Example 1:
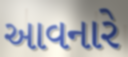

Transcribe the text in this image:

આવનારે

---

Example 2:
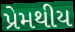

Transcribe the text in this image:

પ્રેમથીય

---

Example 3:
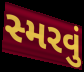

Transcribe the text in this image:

સ્મરવું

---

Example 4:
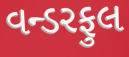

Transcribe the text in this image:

વન્ડરફુલ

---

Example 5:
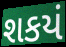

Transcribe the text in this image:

શકયં